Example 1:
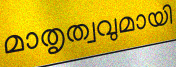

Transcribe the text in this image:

മാതൃത്വവുമായി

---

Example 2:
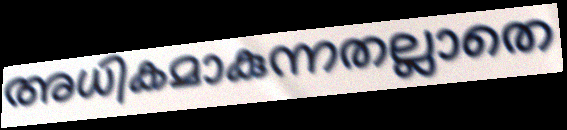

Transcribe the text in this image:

അധികമാകുന്നതല്ലാതെ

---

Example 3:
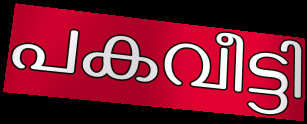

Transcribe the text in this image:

പകവീട്ടി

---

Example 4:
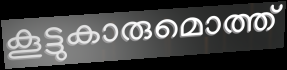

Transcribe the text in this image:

കൂട്ടുകാരുമൊത്ത്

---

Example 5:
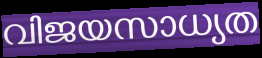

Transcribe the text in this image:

വിജയസാധ്യത